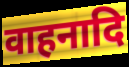
वाहनादि